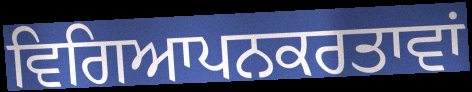
ਵਿਗਿਆਪਨਕਰਤਾਵਾਂ